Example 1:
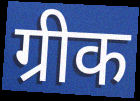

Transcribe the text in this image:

ग्रीक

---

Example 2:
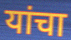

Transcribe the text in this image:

यांचा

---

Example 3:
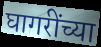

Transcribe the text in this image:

घागरींच्या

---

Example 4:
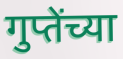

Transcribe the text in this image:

गुप्तेंच्या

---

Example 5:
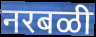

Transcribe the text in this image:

नरबळी